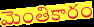
మెంతికారం